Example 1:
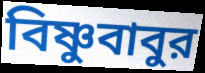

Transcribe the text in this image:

বিষ্ণুবাবুর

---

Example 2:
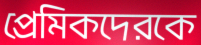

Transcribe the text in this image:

প্রেমিকদেরকে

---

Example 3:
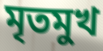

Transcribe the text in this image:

মৃতমুখ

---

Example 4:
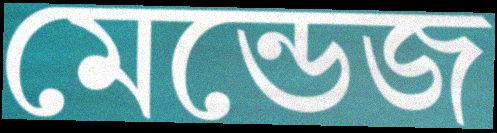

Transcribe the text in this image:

মেন্ডেজ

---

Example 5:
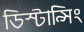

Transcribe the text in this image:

ডিস্টান্সিং